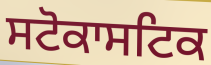
ਸਟੋਕਾਸਟਿਕ